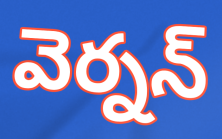
వెర్నన్